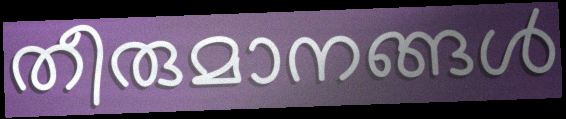
തീരുമാനങ്ങൾ